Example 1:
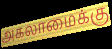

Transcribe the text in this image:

அகலாமைக்கு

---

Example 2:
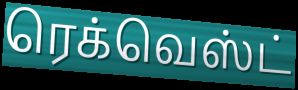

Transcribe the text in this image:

ரெக்வெஸ்ட்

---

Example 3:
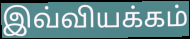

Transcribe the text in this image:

இவ்வியக்கம்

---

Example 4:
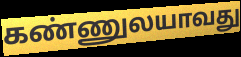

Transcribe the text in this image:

கண்ணுலயாவது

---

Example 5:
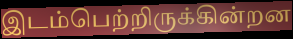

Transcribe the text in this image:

இடம்பெற்றிருக்கின்றன